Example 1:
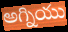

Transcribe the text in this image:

అగ్నియు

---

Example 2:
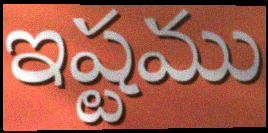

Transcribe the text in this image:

ఇష్టము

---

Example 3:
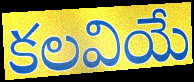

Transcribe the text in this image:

కలవియే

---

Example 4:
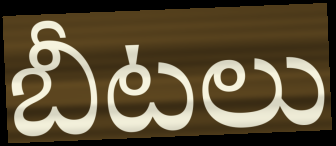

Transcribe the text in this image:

బీటలు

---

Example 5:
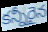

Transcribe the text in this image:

కన్నీరైన